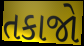
તકાજો